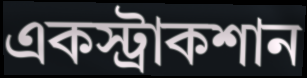
একস্ট্রাকশান